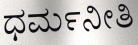
ಧರ್ಮನೀತಿ